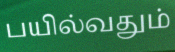
பயில்வதும்